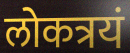
लोकत्रयं